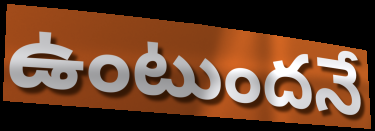
ఉంటుందనే